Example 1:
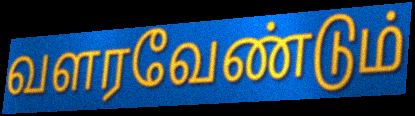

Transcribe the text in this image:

வளரவேண்டும்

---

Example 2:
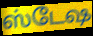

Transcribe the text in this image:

ஸ்டேஷ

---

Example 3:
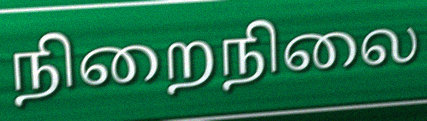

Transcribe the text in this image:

நிறைநிலை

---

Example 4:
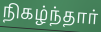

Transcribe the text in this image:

நிகழ்ந்தார்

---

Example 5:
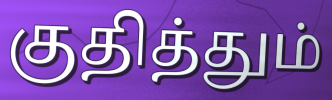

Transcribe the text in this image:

குதித்தும்